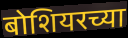
बोशियरच्या